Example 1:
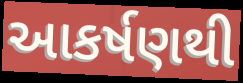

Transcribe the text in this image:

આકર્ષણથી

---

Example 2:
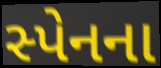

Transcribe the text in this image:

સ્પેનના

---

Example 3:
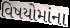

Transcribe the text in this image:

વિષયોમાંના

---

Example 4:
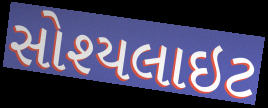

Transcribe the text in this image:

સોશ્યલાઇટ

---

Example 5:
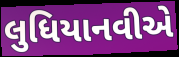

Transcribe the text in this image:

લુધિયાનવીએ